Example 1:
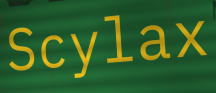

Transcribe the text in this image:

Scylax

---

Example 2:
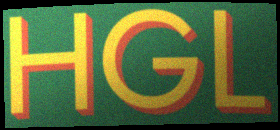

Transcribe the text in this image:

HGL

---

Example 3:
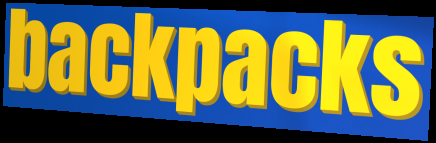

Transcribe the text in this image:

backpacks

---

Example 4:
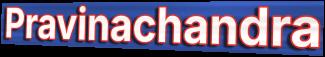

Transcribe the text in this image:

Pravinachandra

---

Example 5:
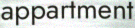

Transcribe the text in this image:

appartment